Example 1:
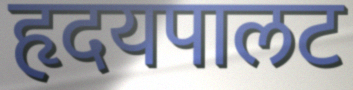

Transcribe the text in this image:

हृदयपालट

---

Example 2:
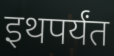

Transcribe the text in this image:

इथपर्यंत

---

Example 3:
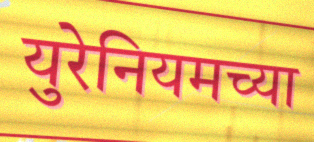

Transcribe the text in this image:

युरेनियमच्या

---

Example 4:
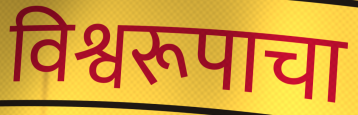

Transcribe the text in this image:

विश्वरूपाचा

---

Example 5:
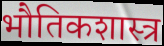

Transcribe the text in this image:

भौतिकशास्त्र